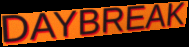
DAYBREAK